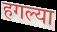
हगल्या